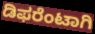
ಡಿಫರೆಂಟಾಗಿ